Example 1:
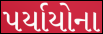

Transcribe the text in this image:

પર્યાયોના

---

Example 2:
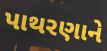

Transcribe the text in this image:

પાથરણાને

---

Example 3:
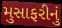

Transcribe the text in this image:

મુસાફરીનું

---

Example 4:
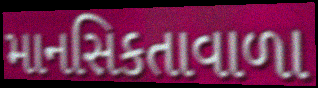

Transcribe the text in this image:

માનસિકતાવાળા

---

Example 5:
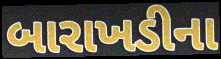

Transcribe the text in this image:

બારાખડીના